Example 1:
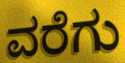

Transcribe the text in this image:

ವರೆಗು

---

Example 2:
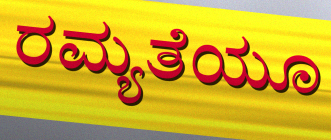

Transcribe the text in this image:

ರಮ್ಯತೆಯೂ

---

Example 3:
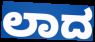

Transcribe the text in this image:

ಲಾದ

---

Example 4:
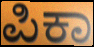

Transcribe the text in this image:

ಪಿಕಾ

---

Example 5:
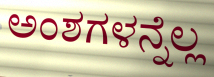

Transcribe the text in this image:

ಅಂಶಗಳನ್ನೆಲ್ಲ